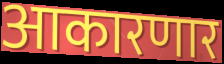
आकारणार